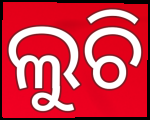
ଲୁଚି